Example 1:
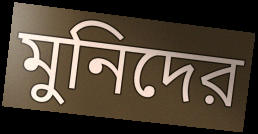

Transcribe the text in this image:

মুনিদের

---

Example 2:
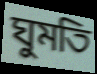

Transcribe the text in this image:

ঘুমতি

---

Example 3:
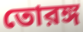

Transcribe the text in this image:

তোরঙ্গ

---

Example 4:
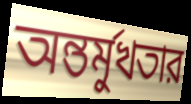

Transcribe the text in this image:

অন্তর্মুখতার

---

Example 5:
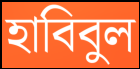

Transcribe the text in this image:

হাবিবুল